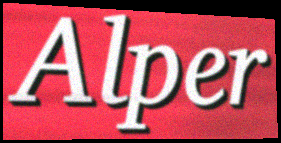
Alper